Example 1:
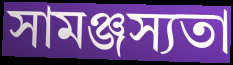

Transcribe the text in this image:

সামঞ্জস্যতা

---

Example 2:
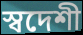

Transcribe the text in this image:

স্বদেশী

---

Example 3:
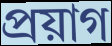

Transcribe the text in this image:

প্ৰয়াগ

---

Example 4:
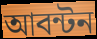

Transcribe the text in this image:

আবন্টন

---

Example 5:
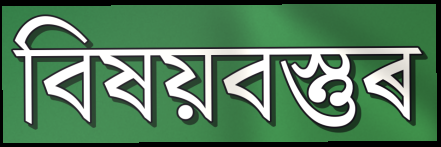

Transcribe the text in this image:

বিষয়বস্তুৰ